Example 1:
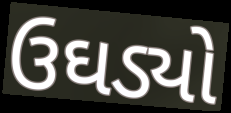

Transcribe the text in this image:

ઉઘડ્યો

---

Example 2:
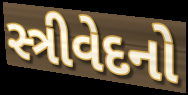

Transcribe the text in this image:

સ્ત્રીવેદનો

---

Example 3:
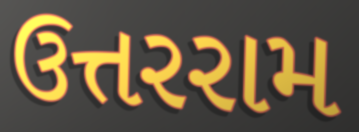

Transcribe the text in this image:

ઉત્તરરામ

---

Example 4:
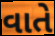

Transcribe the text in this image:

વાતે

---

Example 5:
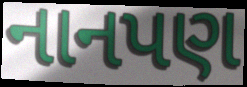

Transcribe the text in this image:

નાનપણ